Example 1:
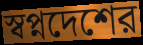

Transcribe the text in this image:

স্বপ্নদেশের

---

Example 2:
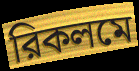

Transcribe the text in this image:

রিকলমে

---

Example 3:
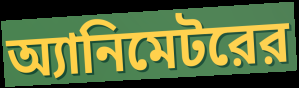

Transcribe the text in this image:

অ্যানিমেটরের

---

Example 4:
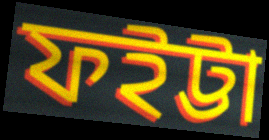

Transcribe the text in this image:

ফইট্টা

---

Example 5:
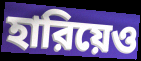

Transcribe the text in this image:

হারিয়েও